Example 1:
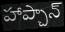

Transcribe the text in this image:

హాప్చాన్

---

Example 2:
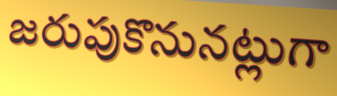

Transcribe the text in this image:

జరుపుకొనునట్లుగా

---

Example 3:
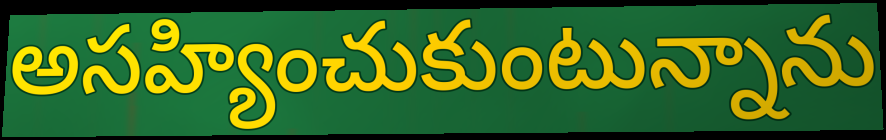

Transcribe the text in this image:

అసహ్యించుకుంటున్నాను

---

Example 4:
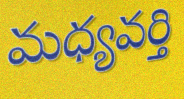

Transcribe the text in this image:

మధ్యవర్తి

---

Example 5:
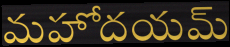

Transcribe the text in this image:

మహోదయమ్